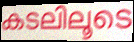
കടലിലൂടെ